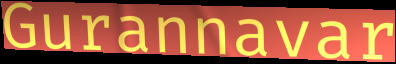
Gurannavar